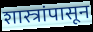
शास्त्रांपासून